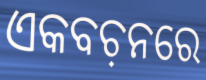
ଏକବଚ଼ନରେ